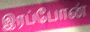
இரப்போன்